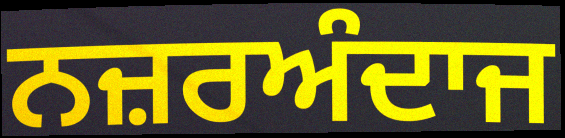
ਨਜ਼ਰਅੰਦਾਜ